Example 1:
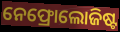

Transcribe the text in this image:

ନେଫ୍ରୋଲୋଜିଷ୍ଟ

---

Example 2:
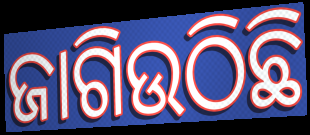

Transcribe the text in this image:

ଜାଗିଉଠିଛି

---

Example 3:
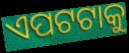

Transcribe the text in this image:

ଏପଟଟାକୁ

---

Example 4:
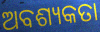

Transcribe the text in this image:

ଅବଶ୍ୟକତା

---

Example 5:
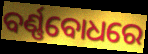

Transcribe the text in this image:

ବର୍ଣ୍ଣବୋଧରେ